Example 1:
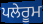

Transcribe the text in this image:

ਪਲੇਰੂਮ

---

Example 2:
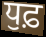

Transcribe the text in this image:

ਧੁਫ਼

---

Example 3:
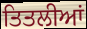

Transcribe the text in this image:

ਤਿਤਲੀਆਂ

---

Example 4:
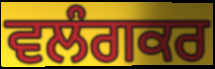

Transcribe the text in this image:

ਵਲੰਗਕਰ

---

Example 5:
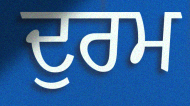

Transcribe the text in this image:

ਦੁਰਮ